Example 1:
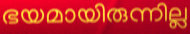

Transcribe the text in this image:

ഭയമായിരുന്നില്ല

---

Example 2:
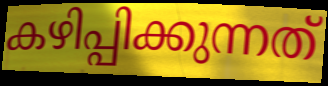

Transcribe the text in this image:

കഴിപ്പിക്കുന്നത്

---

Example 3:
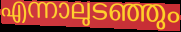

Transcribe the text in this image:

എന്നാലുടഞ്ഞും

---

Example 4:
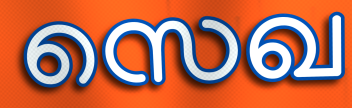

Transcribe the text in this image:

സെഖ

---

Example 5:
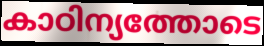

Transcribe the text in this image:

കാഠിന്യത്തോടെ